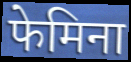
फेमिना